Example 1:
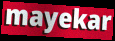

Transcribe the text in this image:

mayekar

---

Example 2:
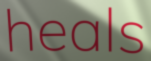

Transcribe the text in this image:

heals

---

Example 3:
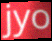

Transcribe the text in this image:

jyo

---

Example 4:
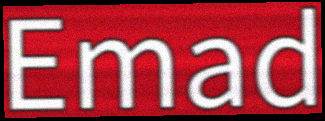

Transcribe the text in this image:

Emad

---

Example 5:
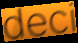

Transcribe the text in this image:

deci